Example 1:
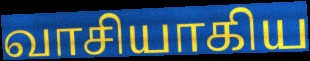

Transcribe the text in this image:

வாசியாகிய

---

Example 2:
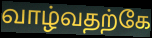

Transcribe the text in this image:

வாழ்வதற்கே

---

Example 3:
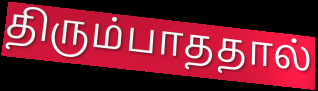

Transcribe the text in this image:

திரும்பாததால்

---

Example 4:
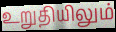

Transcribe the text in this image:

உறுதியிலும்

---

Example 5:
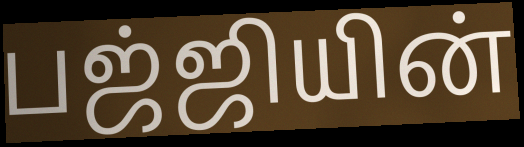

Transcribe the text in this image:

பஜ்ஜியின்